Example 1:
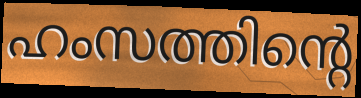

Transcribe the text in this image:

ഹംസത്തിന്റെ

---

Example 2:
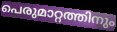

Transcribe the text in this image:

പെരുമാറ്റത്തിനും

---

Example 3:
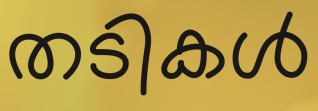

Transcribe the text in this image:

തടികൾ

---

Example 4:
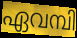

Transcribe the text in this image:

ഏവമ്പി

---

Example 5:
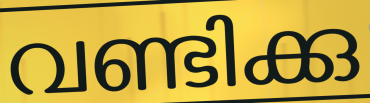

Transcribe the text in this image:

വണ്ടിക്കു